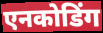
एनकोडिंग